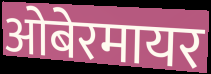
ओबेरमायर